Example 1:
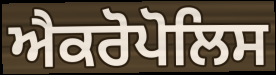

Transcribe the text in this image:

ਐਕਰੋਪੋਲਿਸ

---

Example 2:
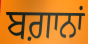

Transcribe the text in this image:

ਬਗ਼ਾਨਾਂ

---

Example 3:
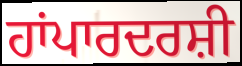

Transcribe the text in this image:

ਹਾਂਪਾਰਦਰਸ਼ੀ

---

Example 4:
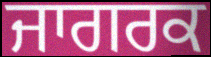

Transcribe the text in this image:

ਜਾਗਰਕ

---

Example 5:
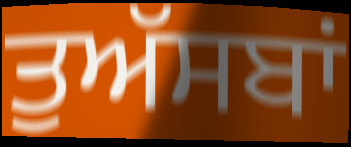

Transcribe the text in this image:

ਤੁਅੱਸਬਾਂ